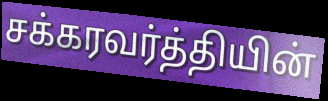
சக்கரவர்த்தியின்